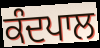
ਕੰਦਪਾਲ